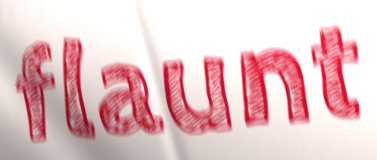
flaunt